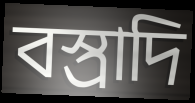
বস্ত্রাদি